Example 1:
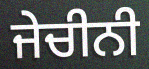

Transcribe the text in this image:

ਜੇਚੀਨੀ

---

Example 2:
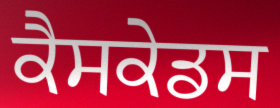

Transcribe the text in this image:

ਕੈਸਕੇਡਸ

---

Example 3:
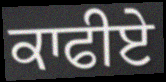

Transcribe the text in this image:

ਕਾਫੀਏ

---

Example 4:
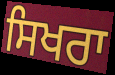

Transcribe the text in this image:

ਸਿਖਰਾ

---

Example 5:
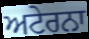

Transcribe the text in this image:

ਅਟੇਰਨਾ